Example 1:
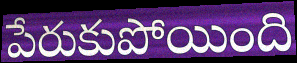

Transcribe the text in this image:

పేరుకుపోయింది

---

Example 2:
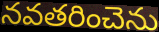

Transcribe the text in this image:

నవతరించెను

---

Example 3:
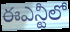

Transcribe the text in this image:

ఈఎన్టీలో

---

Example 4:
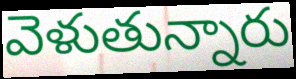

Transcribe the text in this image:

వెళుతున్నారు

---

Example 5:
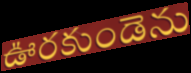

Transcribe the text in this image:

ఊరకుండెను